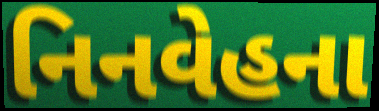
નિનવેહના